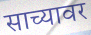
साच्यावर